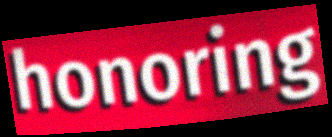
honoring